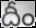
దీం